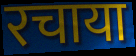
रचाया